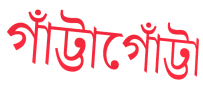
গাঁট্টাগোঁট্টা